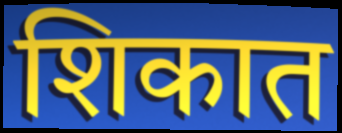
शिकात